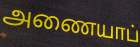
அணையாப்